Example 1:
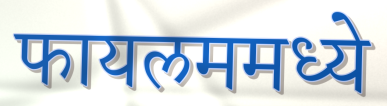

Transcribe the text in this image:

फायलममध्ये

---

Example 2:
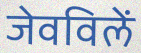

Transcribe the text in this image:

जेवविलें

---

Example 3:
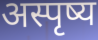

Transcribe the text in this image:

अस्पृष्य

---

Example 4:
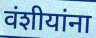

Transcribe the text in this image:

वंशीयांना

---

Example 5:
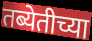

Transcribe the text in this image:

तब्येतीच्या